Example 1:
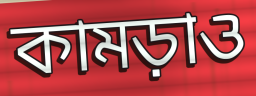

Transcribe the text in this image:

কামড়াও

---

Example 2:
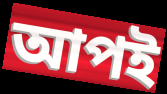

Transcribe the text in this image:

আপই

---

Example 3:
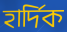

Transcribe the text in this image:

হার্দিক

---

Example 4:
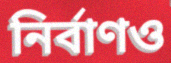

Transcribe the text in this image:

নির্বাণও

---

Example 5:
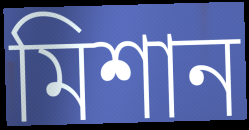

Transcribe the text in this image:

মিশান